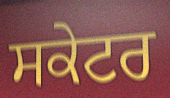
ਸਕੇਟਰ